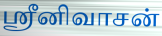
ஸ்ரீனிவாசன்